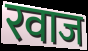
रवाज